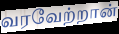
வரவேற்றான்